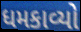
ધમકાવ્યો